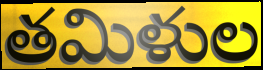
తమిళుల